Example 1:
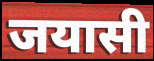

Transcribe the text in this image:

जयासी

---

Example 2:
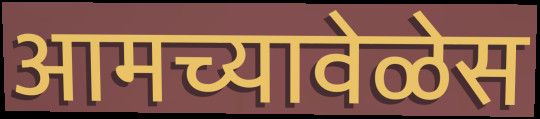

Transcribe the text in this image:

आमच्यावेळेस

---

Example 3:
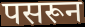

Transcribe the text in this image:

पसरून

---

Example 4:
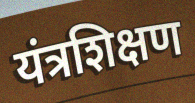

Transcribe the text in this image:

यंत्रशिक्षण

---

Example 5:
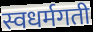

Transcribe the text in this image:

स्वधर्मगती